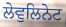
ਲੇਵੁਲਿਨੇਟ